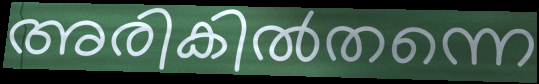
അരികിൽതന്നെ